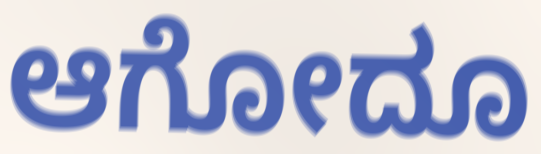
ಆಗೋದೂ